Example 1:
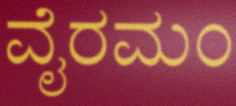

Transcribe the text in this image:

ವೈರಮಂ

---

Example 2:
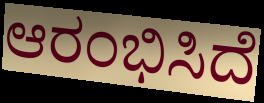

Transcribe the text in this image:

ಆರಂಭಿಸಿದೆ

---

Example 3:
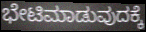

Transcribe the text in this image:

ಭೇಟಿಮಾಡುವುದಕ್ಕೆ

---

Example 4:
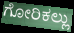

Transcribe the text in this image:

ಗೋರಿಕಲ್ಲು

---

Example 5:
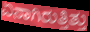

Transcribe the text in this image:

ಏನಾಗಿರುತ್ತಿತ್ತು